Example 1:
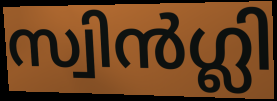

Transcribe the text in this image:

സ്വിൻഗ്ലി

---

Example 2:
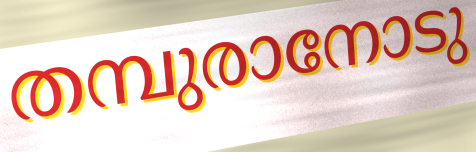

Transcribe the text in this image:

തമ്പുരാനോടു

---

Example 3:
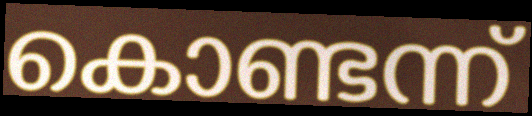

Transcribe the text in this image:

കൊണ്ടന്ന്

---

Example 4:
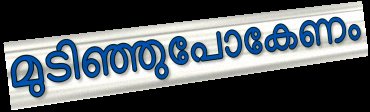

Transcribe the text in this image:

മുടിഞ്ഞുപോകേണം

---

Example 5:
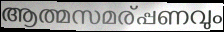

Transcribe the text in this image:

ആത്മസമര്പ്പണവും